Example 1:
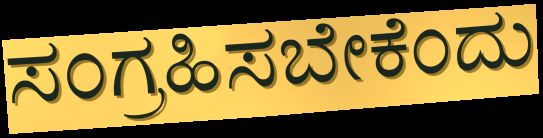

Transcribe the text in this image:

ಸಂಗ್ರಹಿಸಬೇಕೆಂದು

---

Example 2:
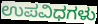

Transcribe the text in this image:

ಉಪವಿಧಗಳು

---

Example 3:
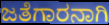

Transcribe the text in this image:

ಜತೆಗಾರನಾಗಿ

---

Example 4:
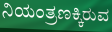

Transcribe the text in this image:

ನಿಯಂತ್ರಣಕ್ಕಿರುವ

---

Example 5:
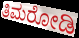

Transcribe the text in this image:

ತಿಮರೋಡಿ